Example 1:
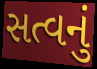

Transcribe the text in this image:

સત્વનું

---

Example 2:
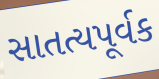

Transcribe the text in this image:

સાતત્યપૂર્વક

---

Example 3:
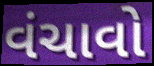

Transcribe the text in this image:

વંચાવો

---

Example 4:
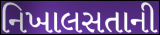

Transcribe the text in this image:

નિખાલસતાની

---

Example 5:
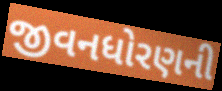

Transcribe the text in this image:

જીવનધોરણની